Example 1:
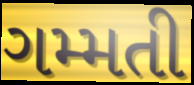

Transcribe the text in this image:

ગમ્મતી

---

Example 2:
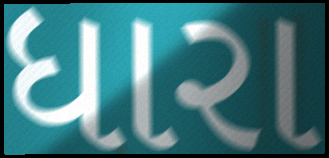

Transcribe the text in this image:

ધારા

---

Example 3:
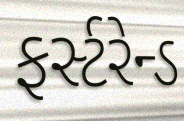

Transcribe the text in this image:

ફર્સ્ટરેન્ડ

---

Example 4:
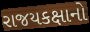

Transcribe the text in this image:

રાજયકક્ષાનો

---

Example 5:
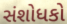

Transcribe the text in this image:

સંશોધકો